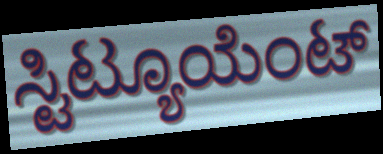
ಸ್ಟಿಟ್ಯೂಯೆಂಟ್